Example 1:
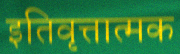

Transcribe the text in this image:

इतिवृत्तात्मक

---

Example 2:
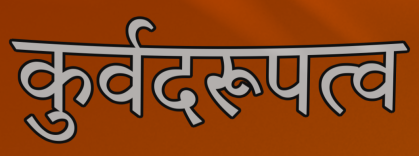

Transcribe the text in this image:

कुर्वदरूपत्व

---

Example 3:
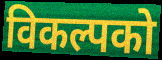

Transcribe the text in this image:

विकल्पको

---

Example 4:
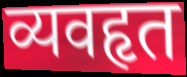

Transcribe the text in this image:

व्यवहृत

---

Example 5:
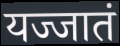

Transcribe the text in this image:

यज्जातं